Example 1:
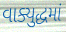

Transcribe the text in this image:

વાક્યુદ્ધમાં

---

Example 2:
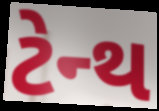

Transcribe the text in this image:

ટેન્થ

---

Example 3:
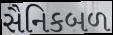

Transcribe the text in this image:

સૈનિકબળ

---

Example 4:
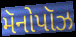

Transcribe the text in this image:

મૅનોપૉઝ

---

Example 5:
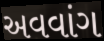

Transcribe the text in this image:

અવવાંગ